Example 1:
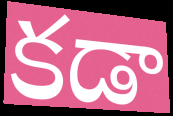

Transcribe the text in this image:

కడా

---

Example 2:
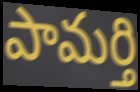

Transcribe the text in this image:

పామర్తి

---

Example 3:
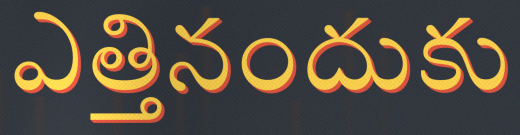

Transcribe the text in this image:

ఎత్తినందుకు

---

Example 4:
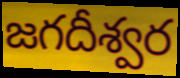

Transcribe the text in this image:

జగదీశ్వర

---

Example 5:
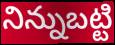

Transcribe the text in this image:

నిన్నుబట్టి